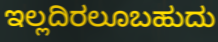
ಇಲ್ಲದಿರಲೂಬಹುದು